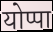
योप्पा